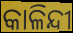
କାଳିନ୍ଦୀ